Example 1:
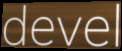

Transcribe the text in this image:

devel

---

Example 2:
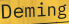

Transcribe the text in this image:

Deming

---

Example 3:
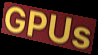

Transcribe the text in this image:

GPUs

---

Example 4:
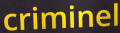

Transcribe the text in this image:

criminel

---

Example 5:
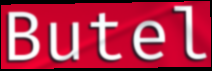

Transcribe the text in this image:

Butel